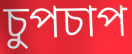
চুপচাপ